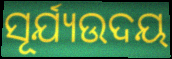
ସୂର୍ଯ୍ୟଉଦୟ